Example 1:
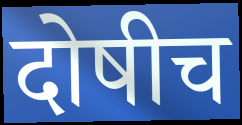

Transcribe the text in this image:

दोषीच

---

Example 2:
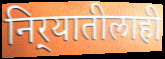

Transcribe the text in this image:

निर्यातीलाही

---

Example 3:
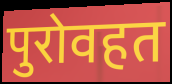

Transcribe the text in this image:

पुरोवहत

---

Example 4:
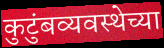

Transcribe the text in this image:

कुटुंबव्यवस्थेच्या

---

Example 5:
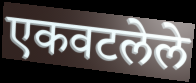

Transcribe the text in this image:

एकवटलेले